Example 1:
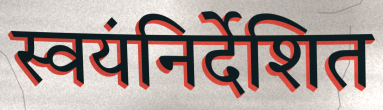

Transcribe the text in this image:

स्वयंनिर्देशित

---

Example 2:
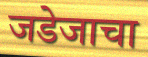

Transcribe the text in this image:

जडेजाचा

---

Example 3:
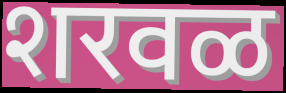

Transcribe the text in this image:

शरवळ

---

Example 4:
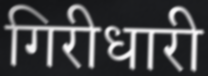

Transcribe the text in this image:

गिरीधारी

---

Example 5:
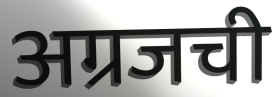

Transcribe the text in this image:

अग्रजची